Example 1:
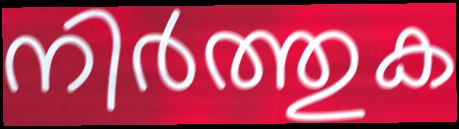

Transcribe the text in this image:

നിർത്തുക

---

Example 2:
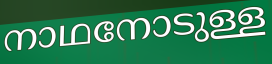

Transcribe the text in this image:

നാഥനോടുള്ള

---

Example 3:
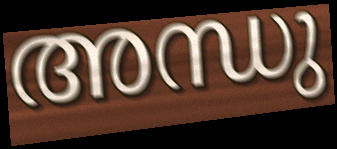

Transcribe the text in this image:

അന്ധു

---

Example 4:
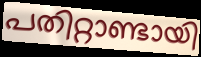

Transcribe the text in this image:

പതിറ്റാണ്ടായി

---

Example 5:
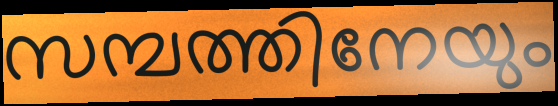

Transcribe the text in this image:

സമ്പത്തിനേയും